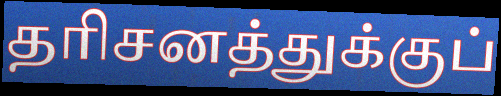
தரிசனத்துக்குப்